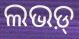
ଲଭଡ଼୍